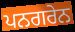
ਪਨਗਰੇਨ